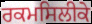
ਰਕਮਸਿਲੀਕੇ